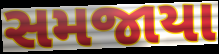
સમજાયા